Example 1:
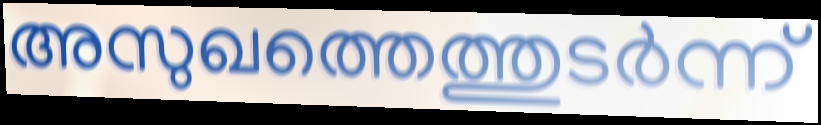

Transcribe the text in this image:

അസുഖത്തെത്തുടർന്ന്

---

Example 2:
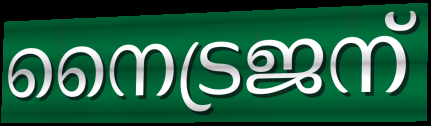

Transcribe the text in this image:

നൈട്രജന്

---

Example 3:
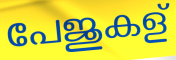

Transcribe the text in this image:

പേജുകള്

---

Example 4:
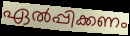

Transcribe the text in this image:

ഏൽപ്പിക്കണം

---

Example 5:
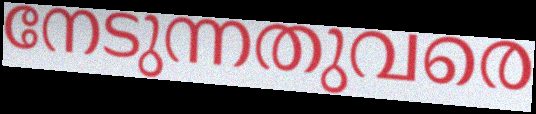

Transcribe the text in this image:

നേടുന്നതുവരെ